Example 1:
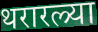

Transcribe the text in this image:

थरारल्या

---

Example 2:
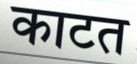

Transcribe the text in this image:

काटत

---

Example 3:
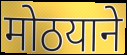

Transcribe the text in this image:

मोठयाने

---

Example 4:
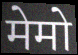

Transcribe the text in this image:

मेमो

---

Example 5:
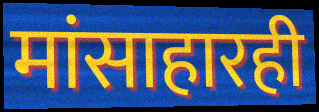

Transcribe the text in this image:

मांसाहारही